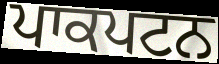
ਪਾਕਪਟਨ